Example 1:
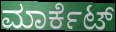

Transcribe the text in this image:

ಮಾರ್ಕೆಟ್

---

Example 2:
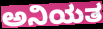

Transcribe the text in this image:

ಅನಿಯತ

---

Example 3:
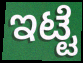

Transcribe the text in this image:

ಇಟ್ಟೆ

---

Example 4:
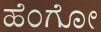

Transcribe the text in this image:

ಹೆಂಗೋ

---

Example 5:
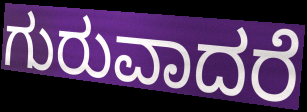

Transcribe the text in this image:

ಗುರುವಾದರೆ